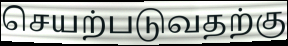
செயற்படுவதற்கு